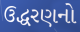
ઉદ્ધરણનો